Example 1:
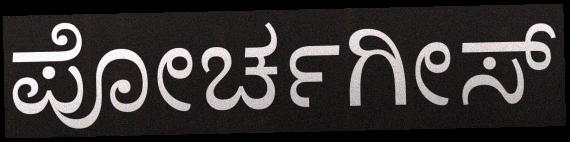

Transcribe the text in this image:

ಪೋರ್ಚಗೀಸ್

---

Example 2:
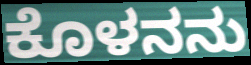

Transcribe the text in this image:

ಕೊಳನನು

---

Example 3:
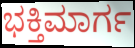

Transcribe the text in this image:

ಭಕ್ತಿಮಾರ್ಗ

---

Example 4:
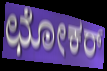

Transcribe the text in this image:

ಛೋಕರ್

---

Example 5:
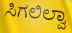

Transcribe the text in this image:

ಸಿಗಲಿಲ್ವಾ